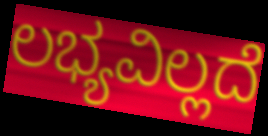
ಲಭ್ಯವಿಲ್ಲದೆ